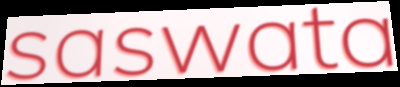
saswata